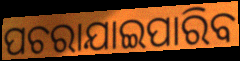
ପଚରାଯାଇପାରିବ